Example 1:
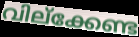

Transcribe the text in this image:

വില്ക്കേണ്ട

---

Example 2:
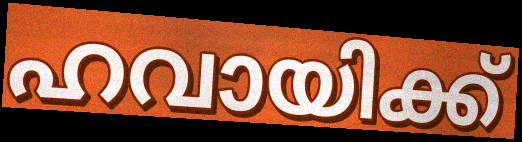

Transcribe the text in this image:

ഹവായിക്ക്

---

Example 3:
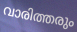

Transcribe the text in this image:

വാരിത്തരും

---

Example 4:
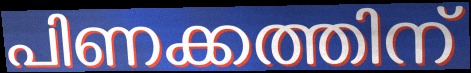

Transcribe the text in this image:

പിണക്കത്തിന്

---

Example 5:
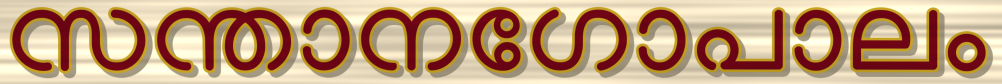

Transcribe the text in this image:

സന്താനഗോപാലം